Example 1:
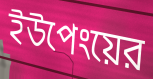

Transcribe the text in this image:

ইউপেংয়ের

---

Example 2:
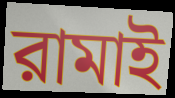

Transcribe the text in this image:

রামাই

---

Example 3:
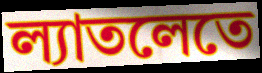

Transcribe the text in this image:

ল্যাতলেতে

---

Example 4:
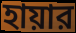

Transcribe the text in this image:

হায়ার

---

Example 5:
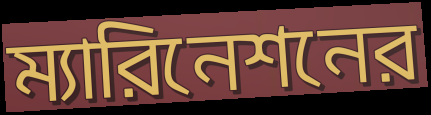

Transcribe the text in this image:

ম্যারিনেশনের